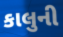
કાલુની